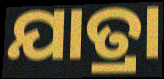
ଯାତ୍ରା